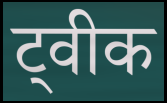
ट्वीक